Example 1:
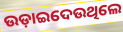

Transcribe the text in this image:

ଉଡ଼ାଇଦେଉଥିଲେ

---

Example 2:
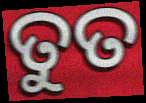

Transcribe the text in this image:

ତୁତ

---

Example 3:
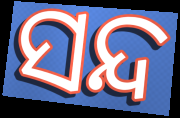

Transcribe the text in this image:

ସନ୍ଦ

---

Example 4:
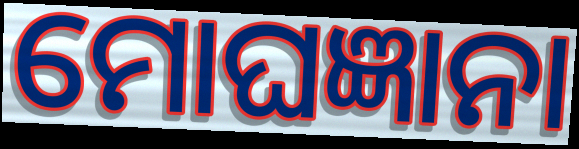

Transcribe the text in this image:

ମୋଘଜ୍ଞାନା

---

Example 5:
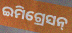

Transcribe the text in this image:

ଇମିଗ୍ରେସନ୍